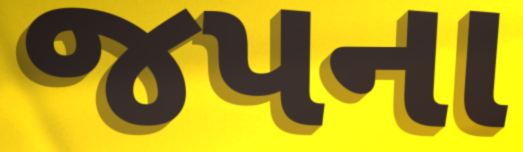
જપના